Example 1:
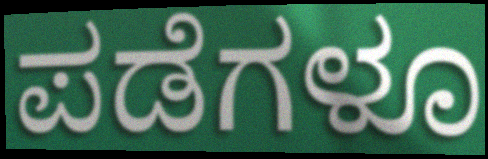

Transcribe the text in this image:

ಪಡೆಗಳೂ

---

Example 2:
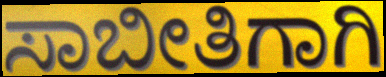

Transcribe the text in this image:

ಸಾಬೀತಿಗಾಗಿ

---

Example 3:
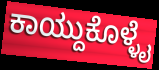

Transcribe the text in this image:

ಕಾಯ್ದುಕೊಳ್ಳೈ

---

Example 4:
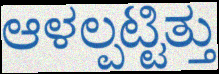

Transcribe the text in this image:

ಆಳಲ್ಪಟ್ಟಿತ್ತು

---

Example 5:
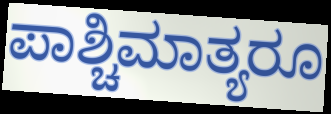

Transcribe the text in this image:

ಪಾಶ್ಚಿಮಾತ್ಯರೂ